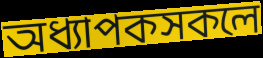
অধ্যাপকসকলে